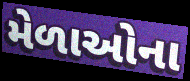
મેળાઓના